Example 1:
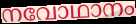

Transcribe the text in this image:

നവോഥാനം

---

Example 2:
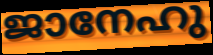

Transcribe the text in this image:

ജാനേഹു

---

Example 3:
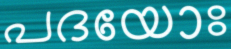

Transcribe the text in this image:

പദയോഃ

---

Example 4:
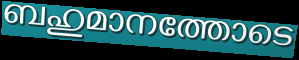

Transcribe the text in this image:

ബഹുമാനത്തോടെ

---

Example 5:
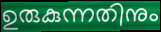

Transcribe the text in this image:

ഉരുകുന്നതിനും